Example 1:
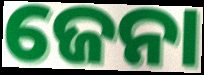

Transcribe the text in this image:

ଜେନା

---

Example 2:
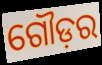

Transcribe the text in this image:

ଗୌଡ଼ର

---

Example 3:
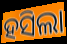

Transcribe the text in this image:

ହସିଲା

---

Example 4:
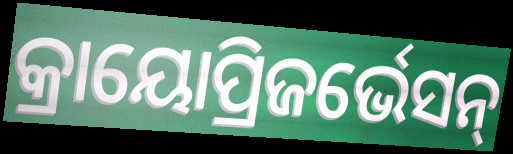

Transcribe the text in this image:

କ୍ରାୟୋପ୍ରିଜର୍ଭେସନ୍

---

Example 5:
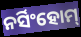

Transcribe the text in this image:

ନର୍ସିଂହୋମ୍